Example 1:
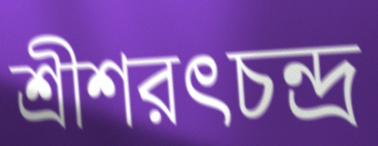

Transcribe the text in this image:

শ্রীশরৎচন্দ্র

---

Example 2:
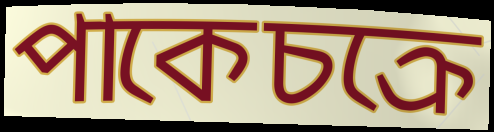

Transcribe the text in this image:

পাকেচক্রে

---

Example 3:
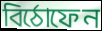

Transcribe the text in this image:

বিঠোফেন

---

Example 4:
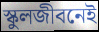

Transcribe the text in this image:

স্কুলজীবনেই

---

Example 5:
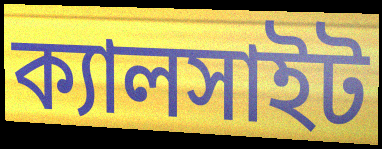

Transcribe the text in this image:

ক্যালসাইট